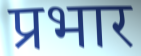
प्रभार